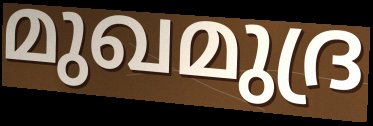
മുഖമുദ്ര